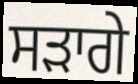
ਸੜਾਗੇ